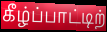
கீழ்ப்பாட்டிற்